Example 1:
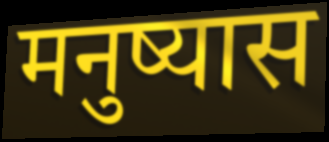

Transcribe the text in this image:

मनुष्यास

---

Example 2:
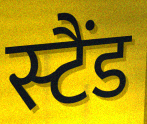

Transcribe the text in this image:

स्‍टैंड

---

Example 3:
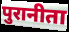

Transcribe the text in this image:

पुरानीता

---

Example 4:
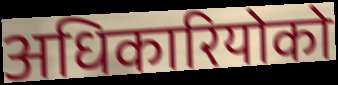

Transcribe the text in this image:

अधिकारियोको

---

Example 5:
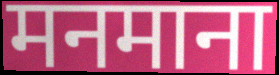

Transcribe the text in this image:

मनमाना